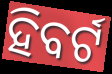
ହିବର୍ଟ